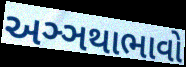
અઞ્ઞથાભાવો